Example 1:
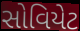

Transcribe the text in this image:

સોવિયેટ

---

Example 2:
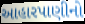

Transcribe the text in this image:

આહારપાણીનો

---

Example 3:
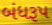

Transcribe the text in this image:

બંધરૂપ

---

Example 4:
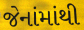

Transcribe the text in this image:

જેનાંમાંથી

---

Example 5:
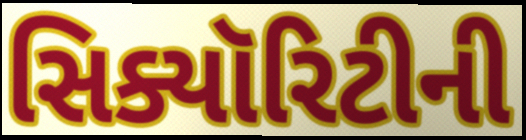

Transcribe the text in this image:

સિક્યૉરિટીની